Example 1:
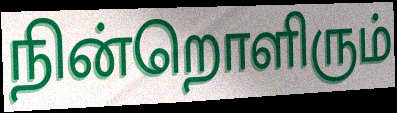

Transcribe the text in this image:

நின்றொளிரும்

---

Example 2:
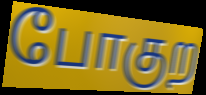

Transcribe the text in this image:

போகுற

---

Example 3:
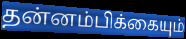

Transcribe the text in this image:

தன்னம்பிக்கையும்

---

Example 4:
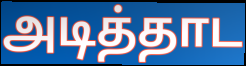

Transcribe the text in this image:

அடித்தாட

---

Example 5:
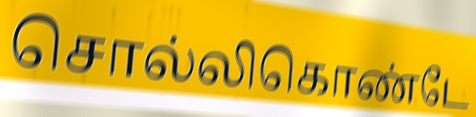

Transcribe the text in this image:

சொல்லிகொண்டே